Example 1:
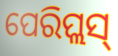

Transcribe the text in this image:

ପେରିପ୍ଲସ୍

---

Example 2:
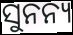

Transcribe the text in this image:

ସୁନନ୍ୟ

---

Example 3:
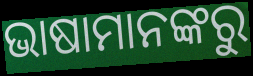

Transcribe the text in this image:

ଭାଷାମାନଙ୍କରୁ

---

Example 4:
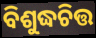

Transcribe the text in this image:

ବିଶୁଦ୍ଧଚିତ୍ତ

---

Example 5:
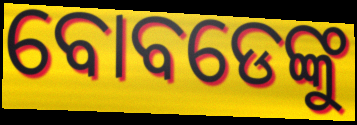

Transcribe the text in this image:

ବୋବଡେଙ୍କୁ